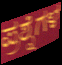
ಪ್ರಶ್ನೆಗಳ